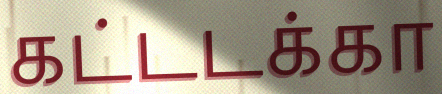
கட்டடக்கா